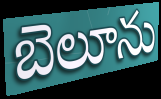
బెలూను